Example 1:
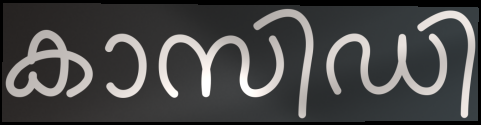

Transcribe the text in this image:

കാസിഡി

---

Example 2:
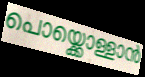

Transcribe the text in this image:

പൊയ്ക്കൊള്ളാൻ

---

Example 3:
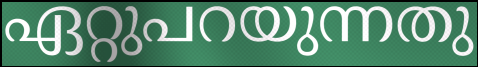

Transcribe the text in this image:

ഏറ്റുപറയുന്നതു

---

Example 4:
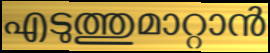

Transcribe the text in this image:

എടുത്തുമാറ്റാൻ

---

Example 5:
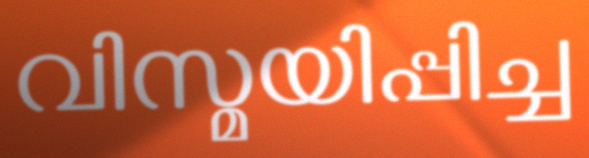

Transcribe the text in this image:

വിസ്മയിപ്പിച്ച